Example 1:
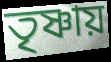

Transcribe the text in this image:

তৃষ্ণায়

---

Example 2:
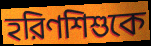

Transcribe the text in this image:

হরিণশিশুকে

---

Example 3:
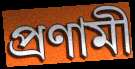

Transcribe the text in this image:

প্রণামী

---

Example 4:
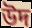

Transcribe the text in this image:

উদ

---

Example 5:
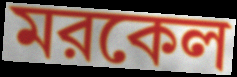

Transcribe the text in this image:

মরকেল